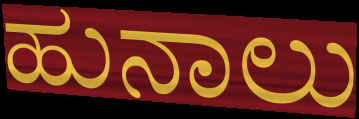
ಹುನಾಲು